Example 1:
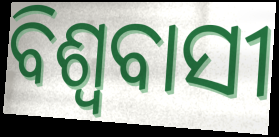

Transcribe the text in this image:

ବିଶ୍ୱବାସୀ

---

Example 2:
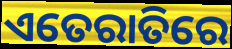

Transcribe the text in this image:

ଏତେରାତିରେ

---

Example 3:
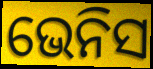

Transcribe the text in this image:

ଭେନିସ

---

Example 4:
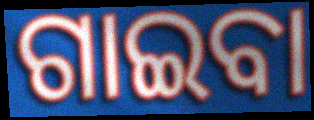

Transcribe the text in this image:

ଗାଇବା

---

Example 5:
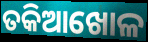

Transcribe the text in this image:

ତକିଆଖୋଳ